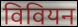
विवियन